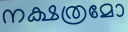
നക്ഷത്രമോ